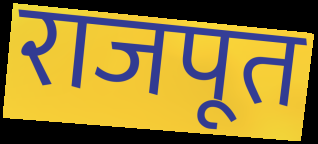
राजपूत